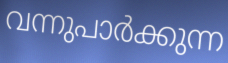
വന്നുപാർക്കുന്ന